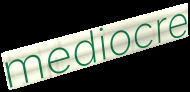
mediocre